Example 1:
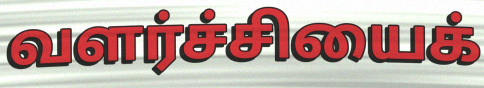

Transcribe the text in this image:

வளர்ச்சியைக்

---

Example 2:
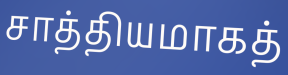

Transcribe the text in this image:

சாத்தியமாகத்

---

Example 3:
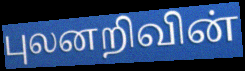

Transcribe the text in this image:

புலனறிவின்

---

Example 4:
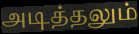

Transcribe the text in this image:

அடித்தலும்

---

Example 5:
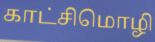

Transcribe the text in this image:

காட்சிமொழி